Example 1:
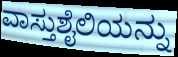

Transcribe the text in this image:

ವಾಸ್ತುಶೈಲಿಯನ್ನು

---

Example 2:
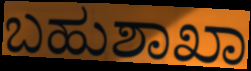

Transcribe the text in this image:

ಬಹುಶಾಖಾ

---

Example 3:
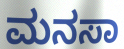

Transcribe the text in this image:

ಮನಸಾ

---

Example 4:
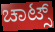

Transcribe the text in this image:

ಚಾಟ್ಸ್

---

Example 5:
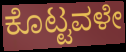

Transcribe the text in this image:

ಕೊಟ್ಟವಳೇ